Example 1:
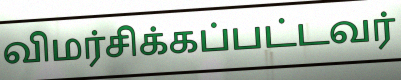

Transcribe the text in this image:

விமர்சிக்கப்பட்டவர்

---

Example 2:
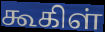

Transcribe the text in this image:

கூகிள்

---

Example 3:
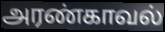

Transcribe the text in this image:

அரண்காவல்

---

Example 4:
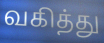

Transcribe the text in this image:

வகித்து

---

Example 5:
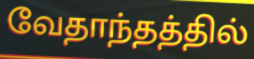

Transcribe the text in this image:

வேதாந்தத்தில்